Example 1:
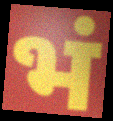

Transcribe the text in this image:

भं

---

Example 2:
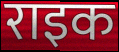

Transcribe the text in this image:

राइक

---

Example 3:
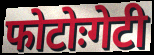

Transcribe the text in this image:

फोटोःगेटी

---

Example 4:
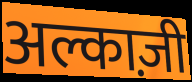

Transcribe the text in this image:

अल्काज़ी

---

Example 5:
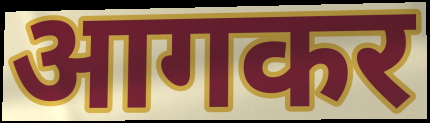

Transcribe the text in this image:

आगकर